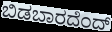
ಬಿಡಬಾರದೆಂದ್